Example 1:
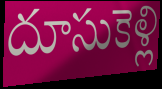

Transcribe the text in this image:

దూసుకెళ్లి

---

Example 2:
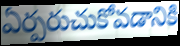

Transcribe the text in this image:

ఏర్పరుచుకోవడానికి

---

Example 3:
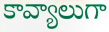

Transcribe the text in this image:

కావ్యాలుగా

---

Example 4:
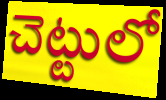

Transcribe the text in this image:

చెట్టులో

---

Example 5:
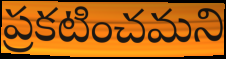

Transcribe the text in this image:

ప్రకటించమని